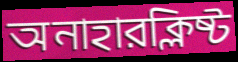
অনাহারক্লিষ্ট